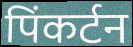
पिंकर्टन